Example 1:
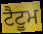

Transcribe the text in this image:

ਟੈਟੂਮ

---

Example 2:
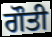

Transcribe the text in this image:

ਗੌਤੀ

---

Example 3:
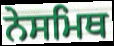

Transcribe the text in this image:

ਨੇਸਮਿਥ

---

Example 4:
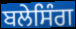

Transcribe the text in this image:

ਬਲੇਸਿੰਗ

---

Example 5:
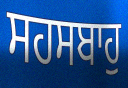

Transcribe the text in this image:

ਸਹਸਬਾਹੁ